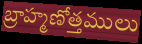
బ్రాహ్మణోత్తములు